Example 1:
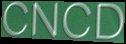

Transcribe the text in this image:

CNCD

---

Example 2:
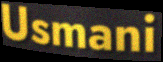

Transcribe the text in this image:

Usmani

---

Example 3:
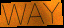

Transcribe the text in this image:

WAY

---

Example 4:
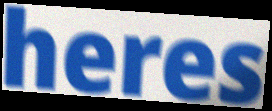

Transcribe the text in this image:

heres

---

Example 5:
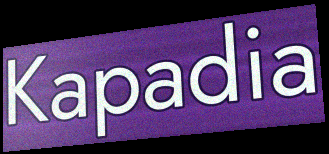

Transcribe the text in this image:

Kapadia